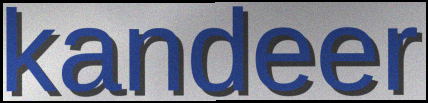
kandeer